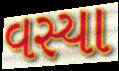
વસ્યા